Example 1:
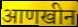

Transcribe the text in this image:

आणखीन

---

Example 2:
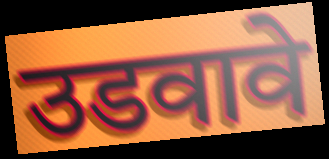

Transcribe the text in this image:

उडवावे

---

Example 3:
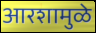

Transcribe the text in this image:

आरशामुळे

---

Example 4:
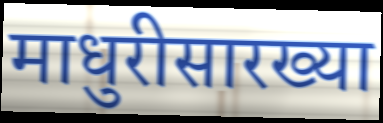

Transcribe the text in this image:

माधुरीसारख्या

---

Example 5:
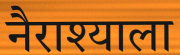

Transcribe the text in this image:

नैराश्याला